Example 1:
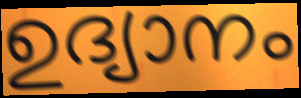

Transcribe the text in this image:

ഉദ്യാനം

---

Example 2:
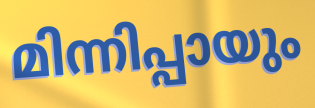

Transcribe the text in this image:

മിന്നിപ്പായും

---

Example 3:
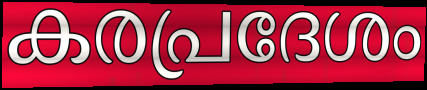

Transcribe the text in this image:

കരപ്രദേശം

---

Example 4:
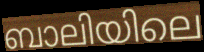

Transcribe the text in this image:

ബാലിയിലെ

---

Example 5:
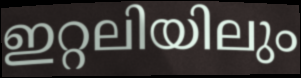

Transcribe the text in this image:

ഇറ്റലിയിലും